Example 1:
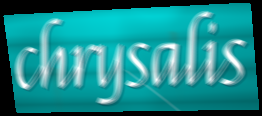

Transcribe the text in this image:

chrysalis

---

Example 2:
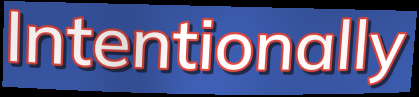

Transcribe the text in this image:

Intentionally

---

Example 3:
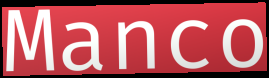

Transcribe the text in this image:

Manco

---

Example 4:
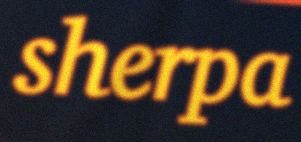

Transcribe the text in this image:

sherpa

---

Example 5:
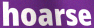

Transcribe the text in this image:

hoarse